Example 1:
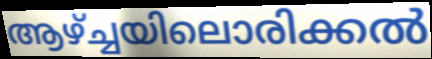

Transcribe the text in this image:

ആഴ്ച്ചയിലൊരിക്കൽ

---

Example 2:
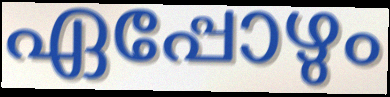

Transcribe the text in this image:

ഏപ്പോഴും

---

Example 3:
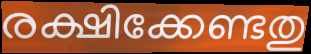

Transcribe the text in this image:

രക്ഷിക്കേണ്ടതു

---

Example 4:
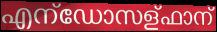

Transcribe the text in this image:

എന്ഡോസള്ഫാന്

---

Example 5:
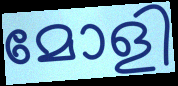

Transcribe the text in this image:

മോളി